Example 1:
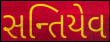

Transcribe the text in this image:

સન્તિયેવ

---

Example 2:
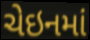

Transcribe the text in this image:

ચેઇનમાં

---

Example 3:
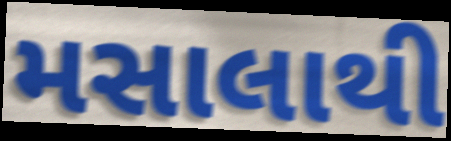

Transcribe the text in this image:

મસાલાથી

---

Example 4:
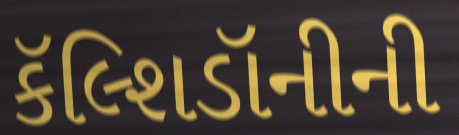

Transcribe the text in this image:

કૅલ્શિડૉનીની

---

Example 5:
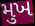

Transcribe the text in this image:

મુખ